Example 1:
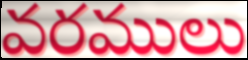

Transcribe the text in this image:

వరములు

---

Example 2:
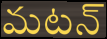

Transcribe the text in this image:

మటన్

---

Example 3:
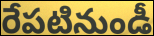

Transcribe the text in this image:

రేపటినుండీ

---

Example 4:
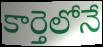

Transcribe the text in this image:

కార్తెలోనే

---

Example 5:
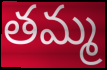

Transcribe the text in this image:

తమ్మ